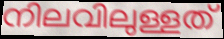
നിലവിലുള്ളത്